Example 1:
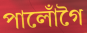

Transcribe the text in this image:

পালোঁগৈ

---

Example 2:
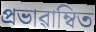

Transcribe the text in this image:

প্ৰভাৱাম্বিত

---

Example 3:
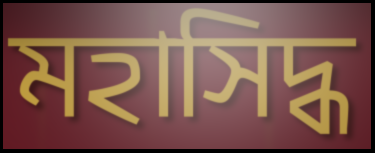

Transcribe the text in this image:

মহাসিদ্ধ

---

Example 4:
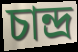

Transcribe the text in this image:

চান্দ্ৰ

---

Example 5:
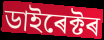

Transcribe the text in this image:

ডাইৰেক্টৰ